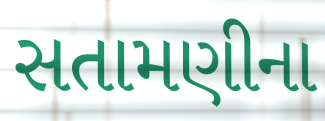
સતામણીના